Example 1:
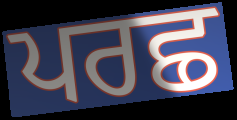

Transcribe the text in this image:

ਪਰਛ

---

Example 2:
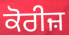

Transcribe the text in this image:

ਕੋਰੀਜ਼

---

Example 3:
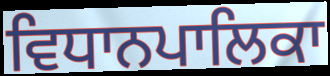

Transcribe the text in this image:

ਵਿਧਾਨਪਾਲਿਕਾ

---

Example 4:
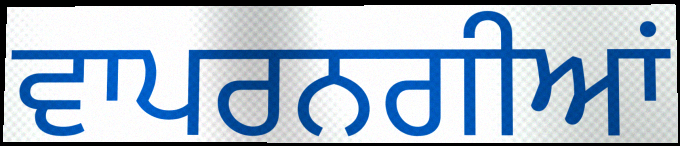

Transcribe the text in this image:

ਵਾਪਰਨਗੀਆਂ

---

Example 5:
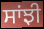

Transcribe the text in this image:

ਸਾਂਝੀ